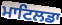
ਮਾਟਿਲਡਾ